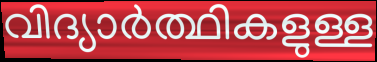
വിദ്യാർത്ഥികളുള്ള